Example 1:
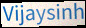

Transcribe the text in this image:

Vijaysinh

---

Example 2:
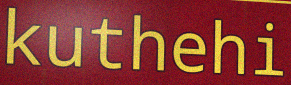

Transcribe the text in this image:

kuthehi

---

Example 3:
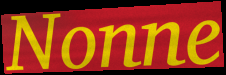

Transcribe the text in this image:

Nonne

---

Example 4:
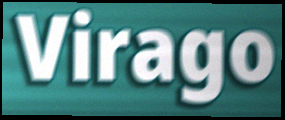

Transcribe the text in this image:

Virago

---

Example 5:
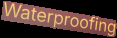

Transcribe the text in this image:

Waterproofing